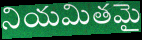
నియమితమై